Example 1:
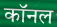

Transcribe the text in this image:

कॉनल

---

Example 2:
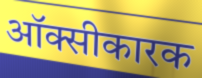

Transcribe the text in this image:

ऑक्सीकारक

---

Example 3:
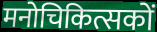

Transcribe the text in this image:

मनोचिकित्सकों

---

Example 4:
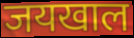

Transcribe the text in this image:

जयखाल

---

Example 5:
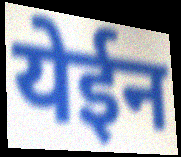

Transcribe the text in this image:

येईन